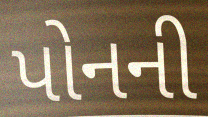
પોનની